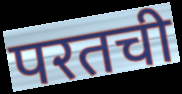
परतची